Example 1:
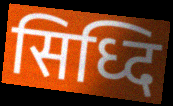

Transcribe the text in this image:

सिध्दि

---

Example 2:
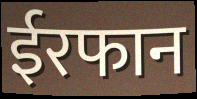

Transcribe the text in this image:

ईरफान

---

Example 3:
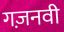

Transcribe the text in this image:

गज़नवी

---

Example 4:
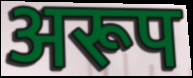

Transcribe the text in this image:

अरूप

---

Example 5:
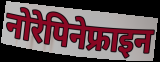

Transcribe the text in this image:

नोरेपिनेफ्राइन